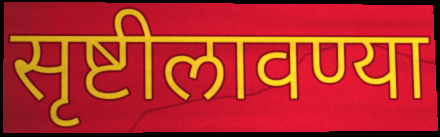
सृष्टीलावण्या